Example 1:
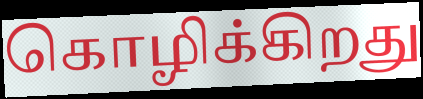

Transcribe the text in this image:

கொழிக்கிறது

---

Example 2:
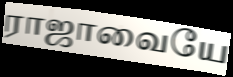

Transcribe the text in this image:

ராஜாவையே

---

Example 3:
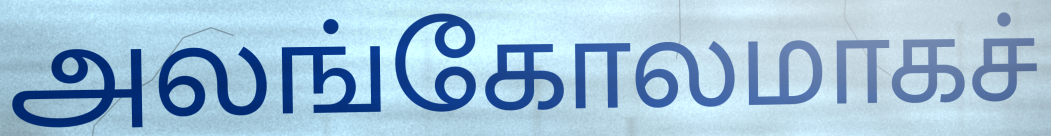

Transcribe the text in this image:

அலங்கோலமாகச்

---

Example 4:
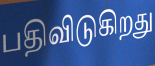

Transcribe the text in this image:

பதிவிடுகிறது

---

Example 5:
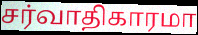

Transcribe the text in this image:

சர்வாதிகாரமா